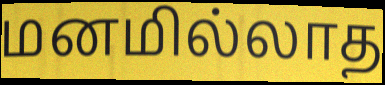
மனமில்லாத